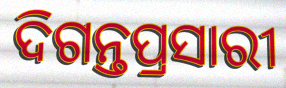
ଦିଗନ୍ତପ୍ରସାରୀ